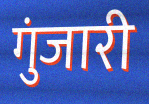
गुंजारी